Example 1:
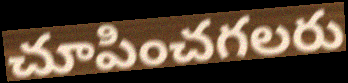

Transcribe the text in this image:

చూపించగలరు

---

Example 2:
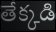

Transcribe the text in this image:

తేక్కడి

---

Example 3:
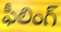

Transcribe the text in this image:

ఫీలింగ్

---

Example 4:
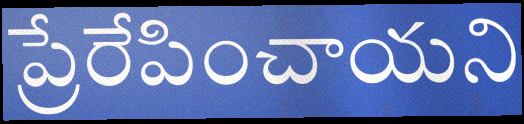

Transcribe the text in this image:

ప్రేరేపించాయని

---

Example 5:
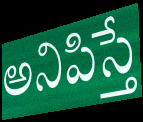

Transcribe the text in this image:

అనిపిస్తే